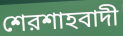
শেরশাহবাদী